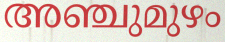
അഞ്ചുമുഴം